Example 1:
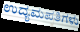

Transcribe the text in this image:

ಉದ್ಯಮಪತಿಗಳು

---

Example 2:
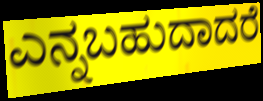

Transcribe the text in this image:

ಎನ್ನಬಹುದಾದರೆ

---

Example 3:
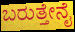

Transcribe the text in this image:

ಬರುತ್ತೇನೈ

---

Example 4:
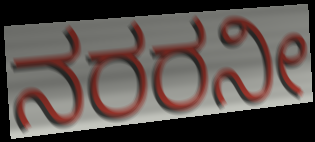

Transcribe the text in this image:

ನರರನೀ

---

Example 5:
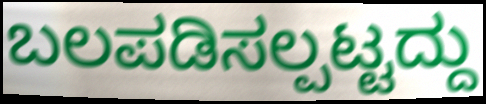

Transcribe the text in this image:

ಬಲಪಡಿಸಲ್ಪಟ್ಟದ್ದು